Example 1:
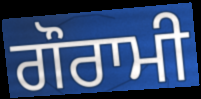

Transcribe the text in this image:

ਗੌਰਾਮੀ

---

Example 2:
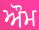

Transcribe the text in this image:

ਔਮ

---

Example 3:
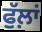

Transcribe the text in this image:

ਫੁੱਲ਼ਾਂ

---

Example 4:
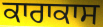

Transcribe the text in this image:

ਕਾਰਾਕਾਸ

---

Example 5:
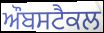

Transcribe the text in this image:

ਔਬਸਟੈਕਲ